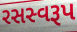
રસસ્વરૂપ